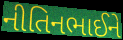
નીતિનભાઈને